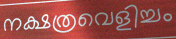
നക്ഷത്രവെളിച്ചം